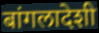
बांगलादेशी